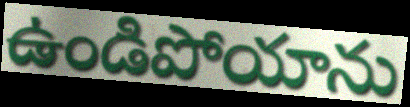
ఉండిపోయాను